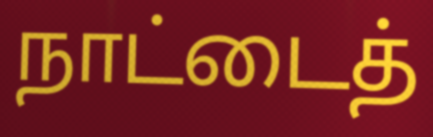
நாட்டைத்